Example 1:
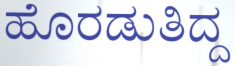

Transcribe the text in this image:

ಹೊರಡುತಿದ್ದ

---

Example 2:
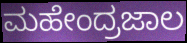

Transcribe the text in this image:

ಮಹೇಂದ್ರಜಾಲ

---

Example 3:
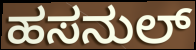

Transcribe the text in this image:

ಹಸನುಲ್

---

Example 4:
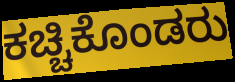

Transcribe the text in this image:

ಕಚ್ಚಿಕೊಂಡರು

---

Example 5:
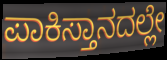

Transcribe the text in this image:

ಪಾಕಿಸ್ತಾನದಲ್ಲೇ